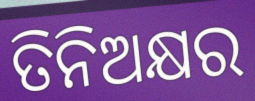
ତିନିଅକ୍ଷର